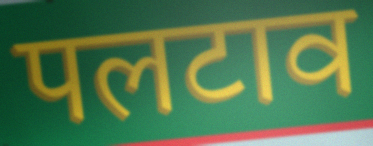
पलटाव